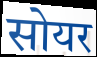
सोयर